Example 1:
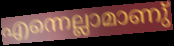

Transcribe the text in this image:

എന്നെല്ലാമാണു്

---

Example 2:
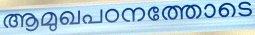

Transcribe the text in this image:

ആമുഖപഠനത്തോടെ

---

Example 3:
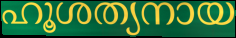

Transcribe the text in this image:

ഹൂശത്യനായ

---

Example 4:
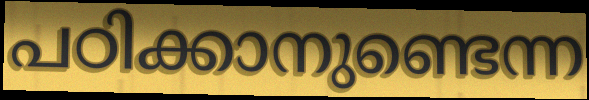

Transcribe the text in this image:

പഠിക്കാനുണ്ടെന്ന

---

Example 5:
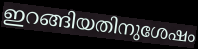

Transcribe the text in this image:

ഇറങ്ങിയതിനുശേഷം